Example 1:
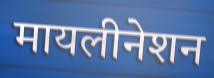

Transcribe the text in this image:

मायलीनेशन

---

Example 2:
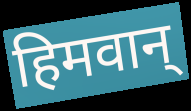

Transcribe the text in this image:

हिमवान्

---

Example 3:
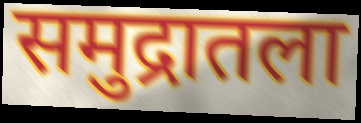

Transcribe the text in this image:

समुद्रातला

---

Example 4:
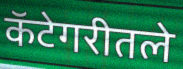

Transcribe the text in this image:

कॅटेगरीतले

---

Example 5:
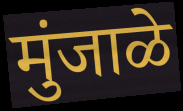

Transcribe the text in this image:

मुंजाळे